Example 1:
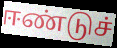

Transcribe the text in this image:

ஈண்டுச்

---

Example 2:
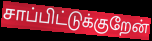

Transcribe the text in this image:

சாப்பிட்டுக்குறேன்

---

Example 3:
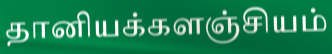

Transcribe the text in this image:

தானியக்களஞ்சியம்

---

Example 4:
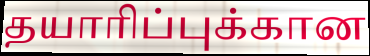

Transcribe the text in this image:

தயாரிப்புக்கான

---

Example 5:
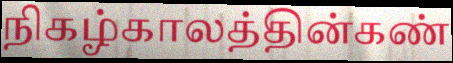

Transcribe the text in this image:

நிகழ்காலத்தின்கண்